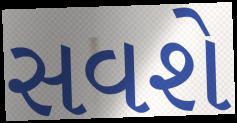
સવશે